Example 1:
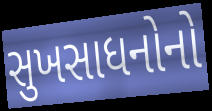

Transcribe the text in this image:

સુખસાધનોનો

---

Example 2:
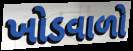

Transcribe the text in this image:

ખોડવાળો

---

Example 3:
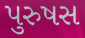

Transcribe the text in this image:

પુરુષસ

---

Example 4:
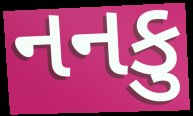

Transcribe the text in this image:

નનકુ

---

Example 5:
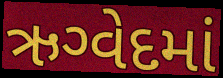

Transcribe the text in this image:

ઋગ્વેદમાં